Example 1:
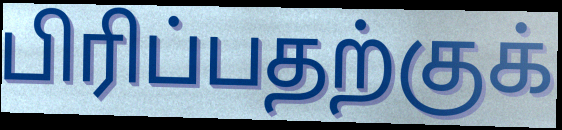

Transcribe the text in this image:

பிரிப்பதற்குக்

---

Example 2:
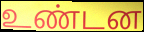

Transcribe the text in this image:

உண்டன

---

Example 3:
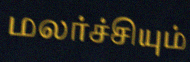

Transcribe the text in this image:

மலர்ச்சியும்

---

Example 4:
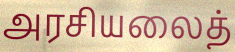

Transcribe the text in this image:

அரசியலைத்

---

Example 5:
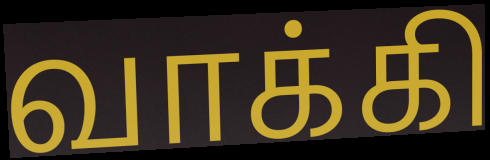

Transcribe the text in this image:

வாக்கி